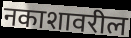
नकाशावरील